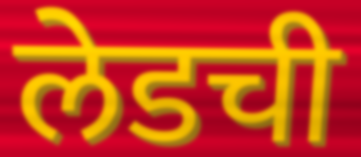
लेडची